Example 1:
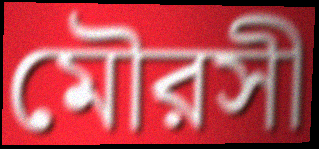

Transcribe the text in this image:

মৌরসী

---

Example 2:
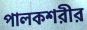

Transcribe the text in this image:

পালকশরীর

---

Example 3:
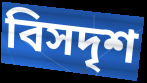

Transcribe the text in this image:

বিসদৃশ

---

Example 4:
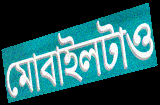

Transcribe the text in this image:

মোবাইলটাও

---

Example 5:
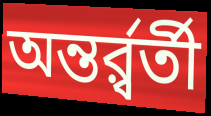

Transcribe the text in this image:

অন্তর্র্বর্তী